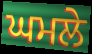
ਘਮਲੇ